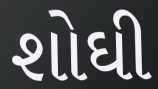
શોઘી